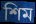
শিম